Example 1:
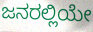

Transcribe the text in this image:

ಜನರಲ್ಲಿಯೇ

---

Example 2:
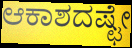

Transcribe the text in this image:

ಆಕಾಶದಷ್ಟೇ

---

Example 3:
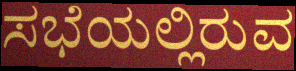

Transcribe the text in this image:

ಸಭೆಯಲ್ಲಿರುವ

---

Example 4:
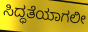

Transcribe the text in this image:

ಸಿದ್ಧತೆಯಾಗಲೀ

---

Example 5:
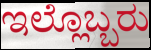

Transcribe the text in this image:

ಇಲ್ಲೊಬ್ಬರು